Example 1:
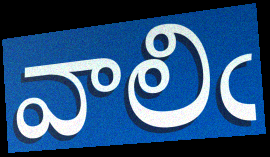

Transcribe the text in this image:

వాలిఁ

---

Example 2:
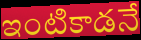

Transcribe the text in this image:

ఇంటికాడనే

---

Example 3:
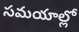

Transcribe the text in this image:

సమయాల్లో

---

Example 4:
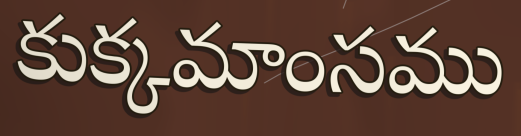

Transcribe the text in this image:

కుక్కమాంసము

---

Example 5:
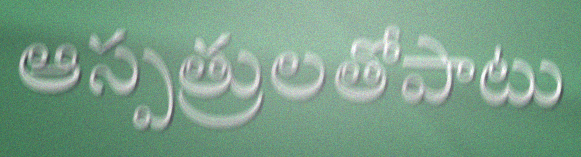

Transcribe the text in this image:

ఆస్పత్రులతోపాటు